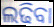
ଲଢିବା